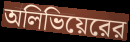
অলিভিয়েরের